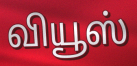
வியூஸ்